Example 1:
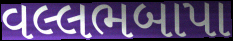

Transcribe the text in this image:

વલ્લભબાપા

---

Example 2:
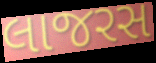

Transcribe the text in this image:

લાજરસ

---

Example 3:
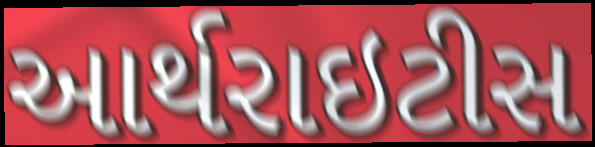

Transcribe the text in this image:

આર્થરાઇટીસ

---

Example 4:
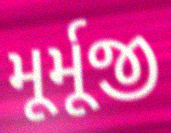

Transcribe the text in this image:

મૂર્મૂજી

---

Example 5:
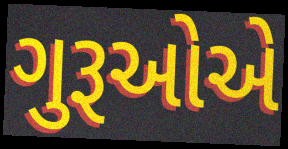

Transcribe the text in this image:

ગુરૂઓએ